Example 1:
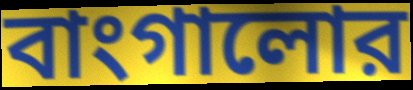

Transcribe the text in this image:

বাংগালোর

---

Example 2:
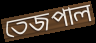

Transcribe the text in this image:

তেজপাল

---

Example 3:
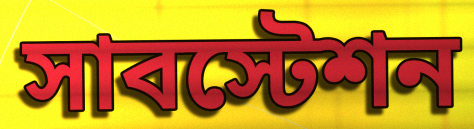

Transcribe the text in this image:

সাবস্টেশন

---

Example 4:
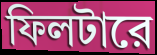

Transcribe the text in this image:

ফিলটারে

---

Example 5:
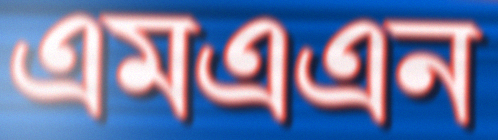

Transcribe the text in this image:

এমএএন